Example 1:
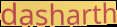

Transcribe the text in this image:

dasharth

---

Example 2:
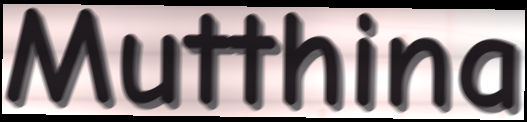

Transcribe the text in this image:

Mutthina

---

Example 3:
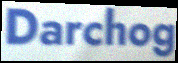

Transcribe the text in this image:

Darchog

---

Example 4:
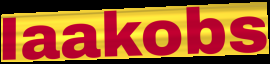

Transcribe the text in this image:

Iaakobs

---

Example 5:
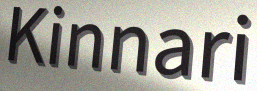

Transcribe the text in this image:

Kinnari